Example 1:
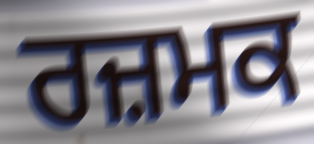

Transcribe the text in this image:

ਰਜ਼ਮਕ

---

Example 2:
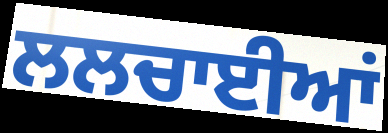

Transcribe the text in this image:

ਲਲਚਾਈਆਂ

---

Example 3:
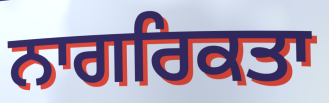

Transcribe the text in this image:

ਨਾਗਰਿਕਤਾ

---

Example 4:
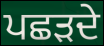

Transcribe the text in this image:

ਪਛੜਦੇ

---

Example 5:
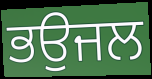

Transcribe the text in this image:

ਭਉਜਲ